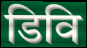
डिवि